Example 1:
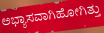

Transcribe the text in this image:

ಅಭ್ಯಾಸವಾಗಿಹೋಗಿತ್ತು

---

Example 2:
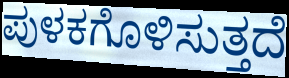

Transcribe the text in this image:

ಪುಳಕಗೊಳಿಸುತ್ತದೆ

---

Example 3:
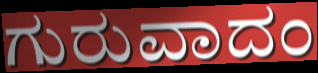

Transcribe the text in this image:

ಗುರುವಾದಂ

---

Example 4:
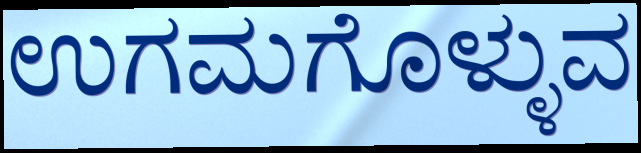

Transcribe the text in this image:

ಉಗಮಗೊಳ್ಳುವ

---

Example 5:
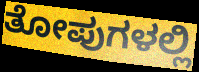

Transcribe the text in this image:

ತೋಪುಗಳಲ್ಲಿ